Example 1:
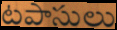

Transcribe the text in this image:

టపాసులు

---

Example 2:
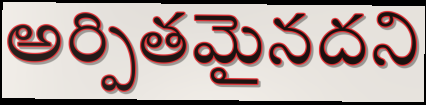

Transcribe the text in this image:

అర్పితమైనదని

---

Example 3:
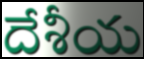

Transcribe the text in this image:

దేశీయ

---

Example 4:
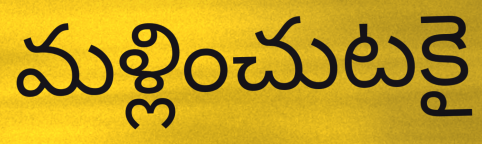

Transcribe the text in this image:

మళ్లించుటకై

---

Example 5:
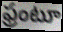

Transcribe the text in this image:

ఫ్రంటూ